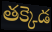
తక్కెడ